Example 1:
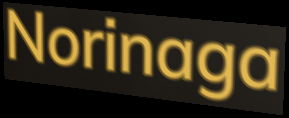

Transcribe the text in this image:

Norinaga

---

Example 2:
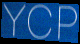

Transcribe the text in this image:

YCP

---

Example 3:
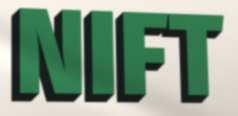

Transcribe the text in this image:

NIFT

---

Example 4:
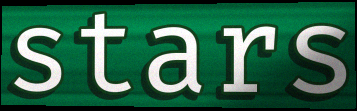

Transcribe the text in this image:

stars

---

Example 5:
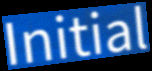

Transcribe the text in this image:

Initial